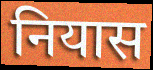
नियास